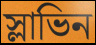
স্লাভিন